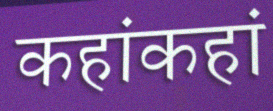
कहांकहां